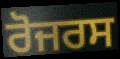
ਰੋਜਰਸ